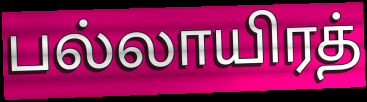
பல்லாயிரத்